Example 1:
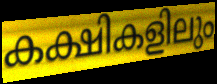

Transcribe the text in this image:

കക്ഷികളിലും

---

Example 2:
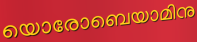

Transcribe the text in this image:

യൊരോബെയാമിനു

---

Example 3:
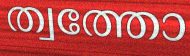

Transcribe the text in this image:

ത്വത്തോ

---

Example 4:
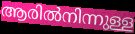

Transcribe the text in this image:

ആരിൽനിന്നുള്ള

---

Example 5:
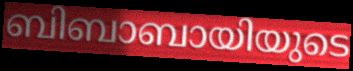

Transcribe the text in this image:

ബിബാബായിയുടെ